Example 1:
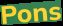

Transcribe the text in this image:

Pons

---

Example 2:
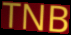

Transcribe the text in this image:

TNB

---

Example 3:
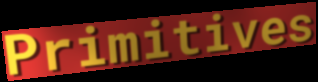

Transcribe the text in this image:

Primitives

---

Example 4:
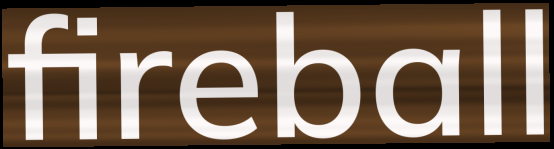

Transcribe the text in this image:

fireball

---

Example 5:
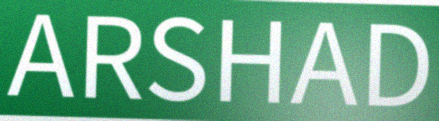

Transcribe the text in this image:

ARSHAD